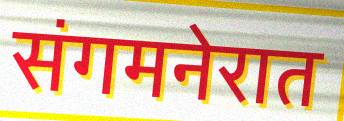
संगमनेरात